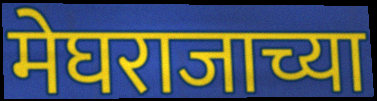
मेघराजाच्या